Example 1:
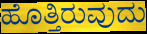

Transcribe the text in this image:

ಹೊತ್ತಿರುವುದು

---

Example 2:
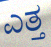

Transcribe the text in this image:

ಎತ್ತ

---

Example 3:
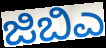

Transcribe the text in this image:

ಜಿಬಿಎ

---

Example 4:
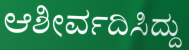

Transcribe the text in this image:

ಆಶೀರ್ವದಿಸಿದ್ದು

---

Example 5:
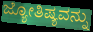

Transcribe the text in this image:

ಜ್ಯೋತಿಷ್ಯವನ್ನು